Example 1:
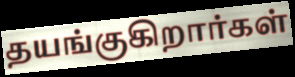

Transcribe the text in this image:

தயங்குகிறார்கள்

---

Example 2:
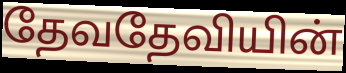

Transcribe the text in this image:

தேவதேவியின்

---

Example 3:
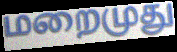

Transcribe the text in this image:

மறைமுது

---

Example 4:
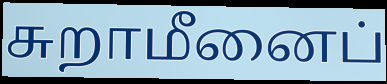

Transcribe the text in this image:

சுறாமீனைப்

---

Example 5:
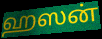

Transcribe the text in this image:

ஹஸன்